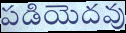
పడియెదవు